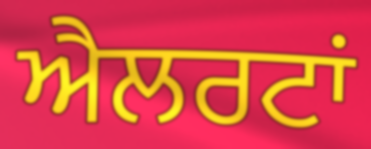
ਐਲਰਟਾਂ